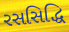
રસસિદ્ધિ